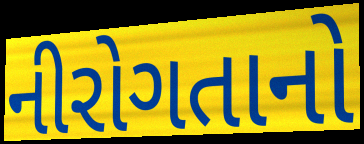
નીરોગતાનો